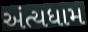
અંત્યધામ